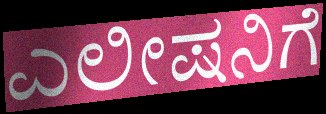
ಎಲೀಷನಿಗೆ